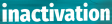
inactivation